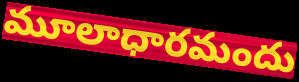
మూలాధారమందు